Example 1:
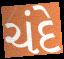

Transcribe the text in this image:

ચંદે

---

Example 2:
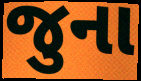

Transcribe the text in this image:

જુના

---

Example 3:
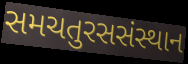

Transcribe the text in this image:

સમચતુરસસંસ્થાન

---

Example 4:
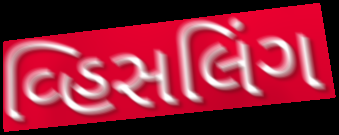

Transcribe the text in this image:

વ્હિસલિંગ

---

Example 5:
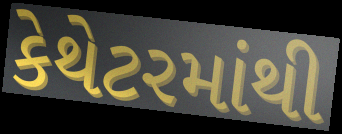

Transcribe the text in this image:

કેથેટરમાંથી